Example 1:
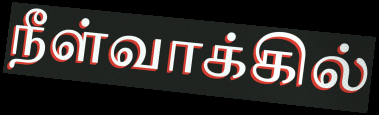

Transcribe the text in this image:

நீள்வாக்கில்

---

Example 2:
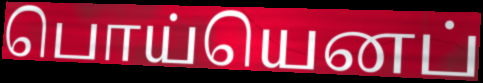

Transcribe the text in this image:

பொய்யெனப்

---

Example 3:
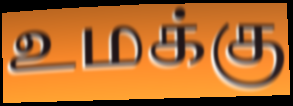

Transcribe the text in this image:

உமக்கு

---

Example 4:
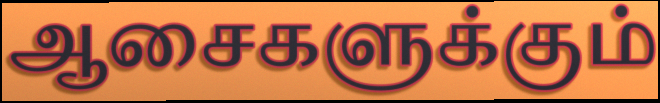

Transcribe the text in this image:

ஆசைகளுக்கும்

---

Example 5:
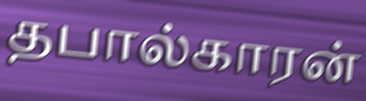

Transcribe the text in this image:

தபால்காரன்